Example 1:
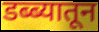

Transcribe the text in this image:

डब्ब्यातून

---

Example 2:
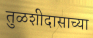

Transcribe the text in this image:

तुळशीदासाच्या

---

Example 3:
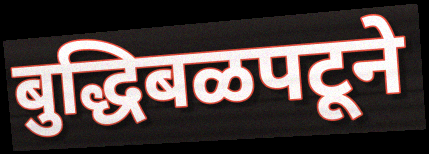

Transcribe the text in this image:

बुद्धिबळपटूने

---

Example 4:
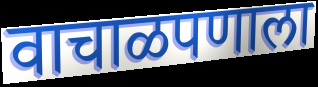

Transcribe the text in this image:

वाचाळपणाला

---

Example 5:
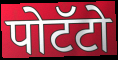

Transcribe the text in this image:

पोटॅटो